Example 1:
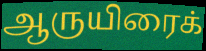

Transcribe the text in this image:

ஆருயிரைக்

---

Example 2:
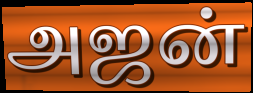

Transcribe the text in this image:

அஜன்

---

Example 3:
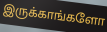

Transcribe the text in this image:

இருக்காங்களோ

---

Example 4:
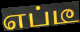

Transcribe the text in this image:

எப்டீ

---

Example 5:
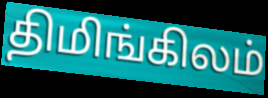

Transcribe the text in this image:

திமிங்கிலம்